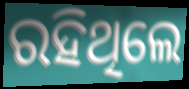
ରହିଥିଲେ